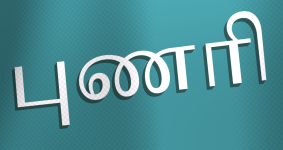
புணரி